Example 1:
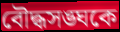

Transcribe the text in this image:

বৌদ্ধসঙ্ঘকে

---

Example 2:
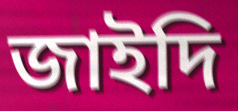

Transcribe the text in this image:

জাইদি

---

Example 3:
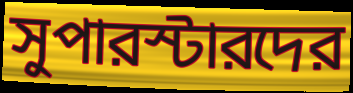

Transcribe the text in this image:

সুপারস্টারদের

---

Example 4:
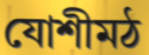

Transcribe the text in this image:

যোশীমঠ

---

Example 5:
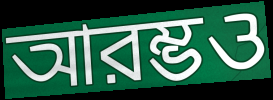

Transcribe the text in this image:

আরম্ভও